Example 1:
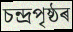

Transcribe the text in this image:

চন্দ্ৰপৃষ্ঠৰ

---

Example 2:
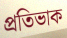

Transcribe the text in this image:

প্ৰতিভাক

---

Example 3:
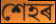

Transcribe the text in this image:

শেহৰ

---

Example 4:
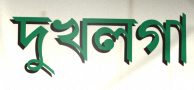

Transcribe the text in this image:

দুখলগা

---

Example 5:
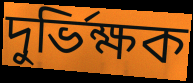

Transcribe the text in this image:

দুৰ্ভিক্ষক